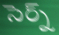
సెర్న్